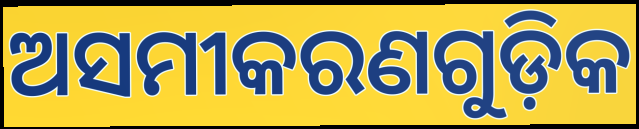
ଅସମୀକରଣଗୁଡ଼ିକ